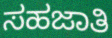
ಸಹಜಾತಿ